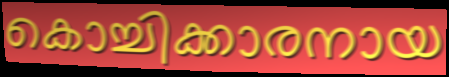
കൊച്ചിക്കാരനായ